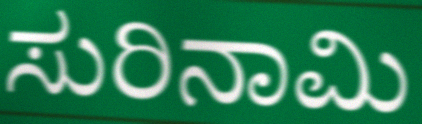
ಸುರಿನಾಮಿ